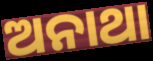
ଅନାଥା